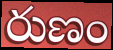
రుణం